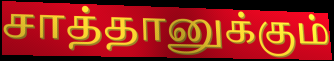
சாத்தானுக்கும்